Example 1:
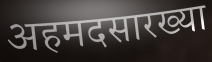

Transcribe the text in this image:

अहमदसारख्या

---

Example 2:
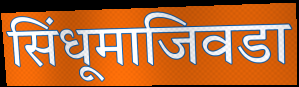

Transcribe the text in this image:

सिंधूमाजिवडा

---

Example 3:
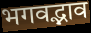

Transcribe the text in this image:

भगवद्भाव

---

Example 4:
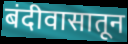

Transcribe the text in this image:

बंदीवासातून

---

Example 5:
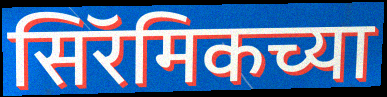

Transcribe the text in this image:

सिरॅमिकच्या